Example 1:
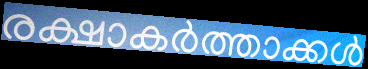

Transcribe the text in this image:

രക്ഷാകർത്താക്കൾ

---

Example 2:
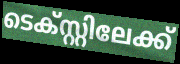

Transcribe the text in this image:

ടെക്സ്റ്റിലേക്ക്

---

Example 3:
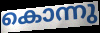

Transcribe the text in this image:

കൊന്നു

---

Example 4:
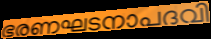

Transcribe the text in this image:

ഭരണഘടനാപദവി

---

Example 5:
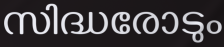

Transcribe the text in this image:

സിദ്ധരോടും